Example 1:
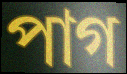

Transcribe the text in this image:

পাগ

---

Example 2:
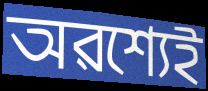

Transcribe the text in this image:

অৱশ্যেই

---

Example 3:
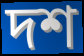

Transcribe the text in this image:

দশ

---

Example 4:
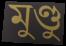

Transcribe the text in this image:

মুণ্ডু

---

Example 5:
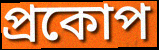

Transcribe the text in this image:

প্ৰকোপ